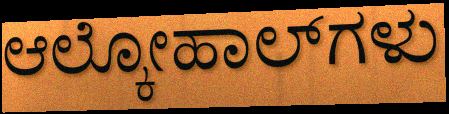
ಆಲ್ಕೋಹಾಲ್‌ಗಳು